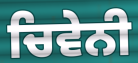
ਚਿਵੇਨੀ